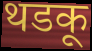
थडकू